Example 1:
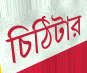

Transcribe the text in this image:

চিঠিটার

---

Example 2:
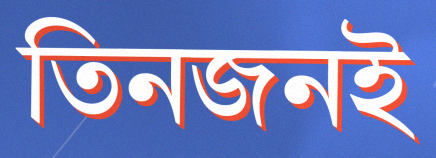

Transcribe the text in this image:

তিনজনই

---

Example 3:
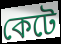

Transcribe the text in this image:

কেটে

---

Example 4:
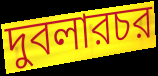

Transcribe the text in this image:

দুবলারচর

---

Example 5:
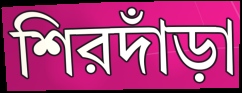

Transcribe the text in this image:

শিরদাঁড়া